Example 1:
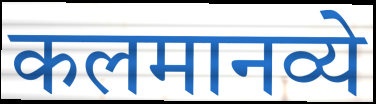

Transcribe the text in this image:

कलमानव्ये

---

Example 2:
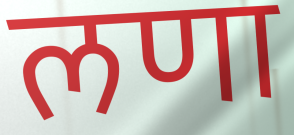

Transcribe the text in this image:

लणा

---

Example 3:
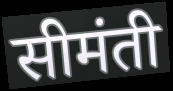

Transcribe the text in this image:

सीमंती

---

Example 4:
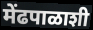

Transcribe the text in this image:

मेंढपाळाशी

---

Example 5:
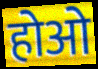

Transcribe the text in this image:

होओ